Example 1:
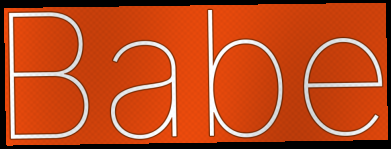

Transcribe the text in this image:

Babe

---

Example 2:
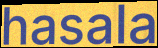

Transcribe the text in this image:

hasala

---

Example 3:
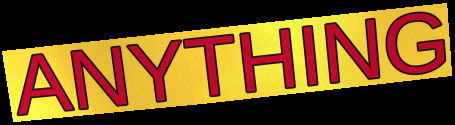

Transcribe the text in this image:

ANYTHING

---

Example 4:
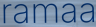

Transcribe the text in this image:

ramaa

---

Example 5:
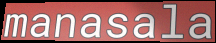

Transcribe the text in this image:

manasala